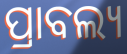
ପ୍ରାବଲ୍ୟ